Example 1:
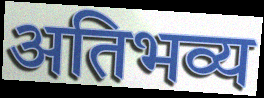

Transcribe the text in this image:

अतिभव्य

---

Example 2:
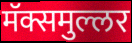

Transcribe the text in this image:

मॅक्समुल्लर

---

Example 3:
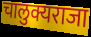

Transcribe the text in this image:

चालुक्यराजा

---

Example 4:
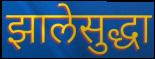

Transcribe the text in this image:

झालेसुद्धा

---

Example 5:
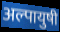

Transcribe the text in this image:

अल्पायुषी